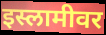
इस्लामीवर